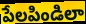
పేలపిండిలా